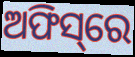
ଅଫିସ୍‌ରେ